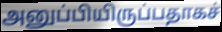
அனுப்பியிருப்பதாகச்